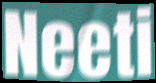
Neeti